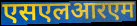
एसएलआरएम